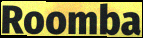
Roomba